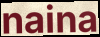
naina